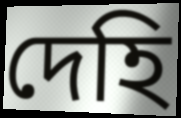
দেহি